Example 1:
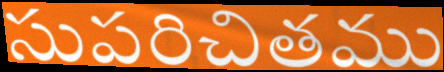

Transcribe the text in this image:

సుపరిచితము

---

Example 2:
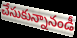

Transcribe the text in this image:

చేసుకున్నానండీ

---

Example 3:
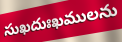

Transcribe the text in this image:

సుఖదుఃఖములను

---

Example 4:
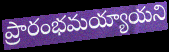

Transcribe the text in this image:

ప్రారంభమయ్యాయని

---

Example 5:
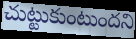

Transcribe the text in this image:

చుట్టుకుంటుందని